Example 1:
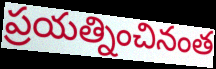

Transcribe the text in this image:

ప్రయత్నించినంత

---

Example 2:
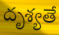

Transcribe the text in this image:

దృశ్యతే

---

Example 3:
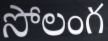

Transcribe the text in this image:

సోలంగ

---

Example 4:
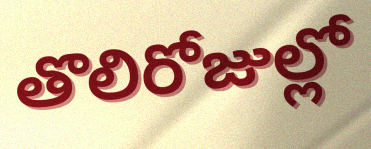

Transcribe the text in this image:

తొలిరోజుల్లో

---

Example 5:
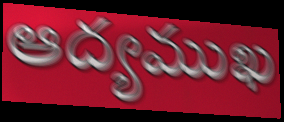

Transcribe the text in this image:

ఆద్యముఖ